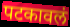
पटकावलं